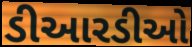
ડીઆરડીઓ